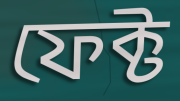
ফেক্ট